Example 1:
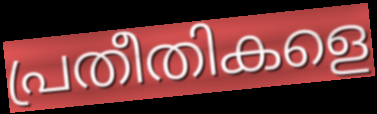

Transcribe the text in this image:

പ്രതീതികളെ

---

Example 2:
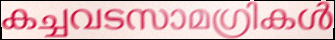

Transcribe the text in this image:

കച്ചവടസാമഗ്രികൾ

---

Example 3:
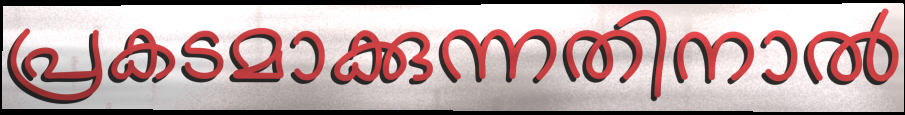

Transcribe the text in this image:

പ്രകടമാക്കുന്നതിനാൽ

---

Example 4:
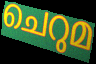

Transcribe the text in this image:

ചെറുമ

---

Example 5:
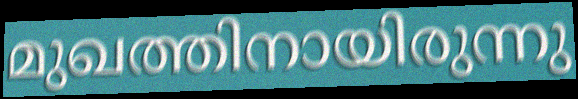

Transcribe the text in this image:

മുഖത്തിനായിരുന്നു